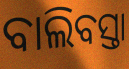
ବାଲିବସ୍ତା